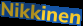
Nikkinen